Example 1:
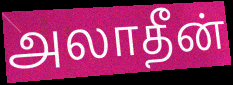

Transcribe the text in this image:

அலாதீன்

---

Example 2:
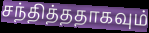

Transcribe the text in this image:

சந்தித்ததாகவும்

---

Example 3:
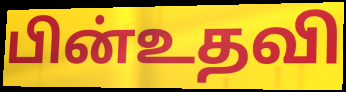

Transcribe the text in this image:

பின்உதவி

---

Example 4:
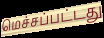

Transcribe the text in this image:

மெச்சப்பட்டது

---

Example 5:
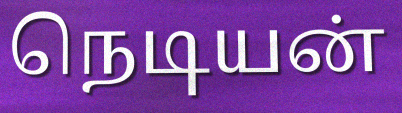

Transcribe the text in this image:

நெடியன்